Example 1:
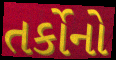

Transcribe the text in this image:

તર્કોનો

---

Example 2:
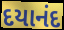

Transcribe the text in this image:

દયાનંદ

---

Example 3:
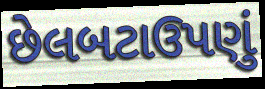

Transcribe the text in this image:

છેલબટાઉપણું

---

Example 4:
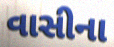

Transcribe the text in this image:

વાસીના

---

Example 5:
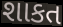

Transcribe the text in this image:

શાકત